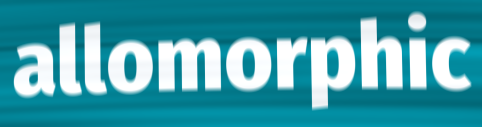
allomorphic